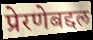
प्रेरणेबद्दल